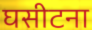
घसीटना